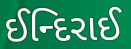
ઈન્દિરાઈ